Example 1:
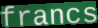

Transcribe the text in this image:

francs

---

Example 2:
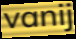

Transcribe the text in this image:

vanij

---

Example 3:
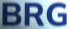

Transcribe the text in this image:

BRG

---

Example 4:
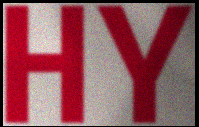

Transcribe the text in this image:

HY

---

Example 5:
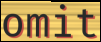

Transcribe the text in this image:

omit